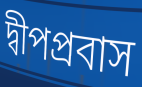
দ্বীপপ্রবাস